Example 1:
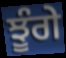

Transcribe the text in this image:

ਝੂੰਗੇ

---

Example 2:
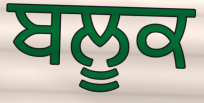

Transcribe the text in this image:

ਬਲੂਕ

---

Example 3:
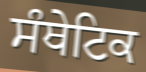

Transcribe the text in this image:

ਸੰਥੇਟਿਕ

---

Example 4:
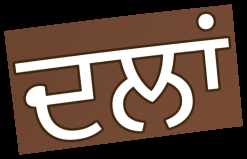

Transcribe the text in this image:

ਦਲਾਂ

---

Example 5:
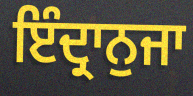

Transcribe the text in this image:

ਇੰਦ੍ਰਾਨੁਜਾ